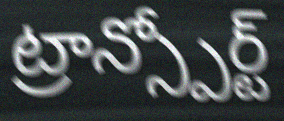
ట్రాన్స్పోర్ట్